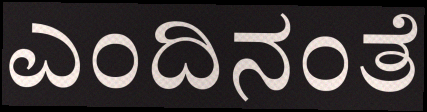
ಎಂದಿನಂತೆ